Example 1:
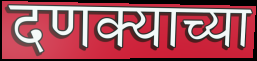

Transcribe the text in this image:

दणक्याच्या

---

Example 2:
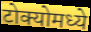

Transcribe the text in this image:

टोक्योमध्ये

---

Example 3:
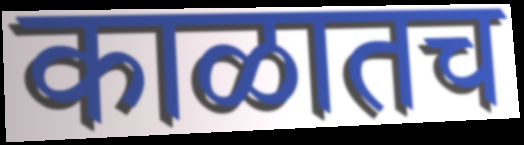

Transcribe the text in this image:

काळातच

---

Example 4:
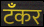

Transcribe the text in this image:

टॅँकर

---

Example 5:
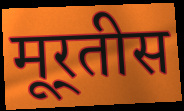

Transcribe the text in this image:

मूर्तीस